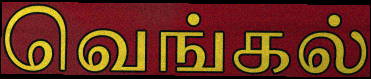
வெங்கல்